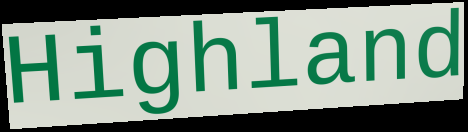
Highland